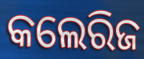
କଲେରିଜ